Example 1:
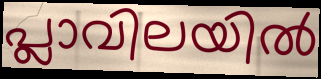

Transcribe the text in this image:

പ്ലാവിലയിൽ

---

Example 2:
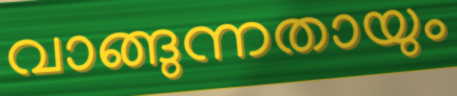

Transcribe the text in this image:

വാങ്ങുന്നതായും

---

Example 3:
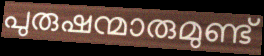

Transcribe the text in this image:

പുരുഷന്മാരുമുണ്ട്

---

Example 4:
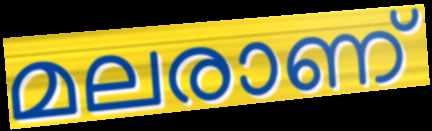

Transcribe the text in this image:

മലരാണ്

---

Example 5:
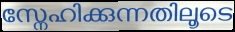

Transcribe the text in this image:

സ്നേഹിക്കുന്നതിലൂടെ